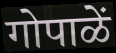
गोपाळें